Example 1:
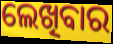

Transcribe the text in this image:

ଲେଖିବାର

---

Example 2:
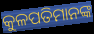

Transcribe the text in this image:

କୁଳପତିମାନଙ୍କ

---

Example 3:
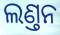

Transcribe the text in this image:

ଲଣ୍ତନ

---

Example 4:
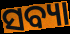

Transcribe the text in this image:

ସବ୍ୟା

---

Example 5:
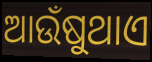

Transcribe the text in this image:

ଆଉଁଷୁଥାଏ